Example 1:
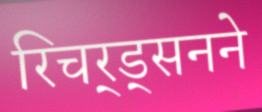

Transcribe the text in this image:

रिचर्ड्सनने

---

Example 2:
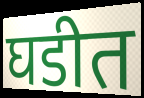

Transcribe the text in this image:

घडीत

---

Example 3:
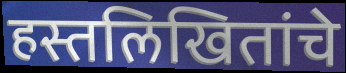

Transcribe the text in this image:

हस्तलिखितांचे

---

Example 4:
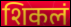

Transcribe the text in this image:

शिकलं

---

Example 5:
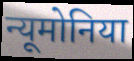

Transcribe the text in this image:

न्यूमोनिया